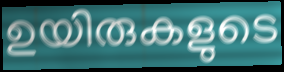
ഉയിരുകളുടെ